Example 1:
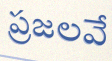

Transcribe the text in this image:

ప్రజలవే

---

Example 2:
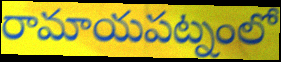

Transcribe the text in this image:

రామాయపట్నంలో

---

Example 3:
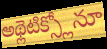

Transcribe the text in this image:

అథ్లెటిక్స్లోనూ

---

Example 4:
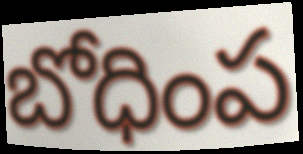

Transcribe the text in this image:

బోధింప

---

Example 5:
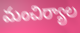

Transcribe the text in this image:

మంచిర్యాల